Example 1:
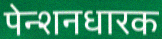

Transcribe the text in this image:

पेन्शनधारक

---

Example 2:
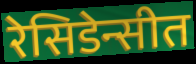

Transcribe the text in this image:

रेसिडेन्सीत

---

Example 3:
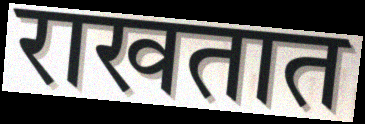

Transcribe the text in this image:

राखतात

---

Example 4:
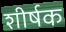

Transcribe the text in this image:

शीर्षक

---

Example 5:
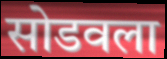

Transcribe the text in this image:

सोडवला